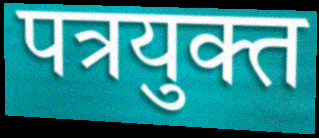
पत्रयुक्त